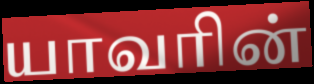
யாவரின்